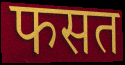
फसत